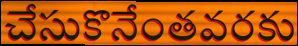
చేసుకొనేంతవరకు